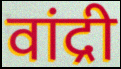
वांद्री